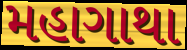
મહાગાથા